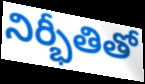
నిర్భీతితో